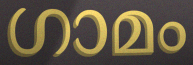
ഗാമം